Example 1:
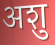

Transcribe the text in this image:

अशु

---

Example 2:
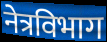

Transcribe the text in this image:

नेत्रविभाग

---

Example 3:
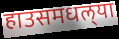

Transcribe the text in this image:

हाउसमधल्या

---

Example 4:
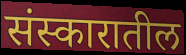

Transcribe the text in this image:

संस्कारातील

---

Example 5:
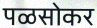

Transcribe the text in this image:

पळसोकर